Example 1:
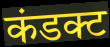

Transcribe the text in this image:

कंडक्ट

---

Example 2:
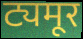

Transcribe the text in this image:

ट्यमूर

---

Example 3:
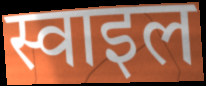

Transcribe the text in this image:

स्वाइल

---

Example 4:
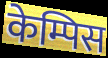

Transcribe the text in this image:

केम्पिस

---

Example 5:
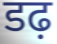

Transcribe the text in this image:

डढ़